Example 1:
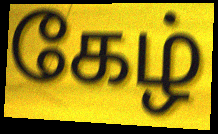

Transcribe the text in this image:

கேழ்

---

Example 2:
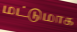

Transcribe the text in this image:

மட்டுமாக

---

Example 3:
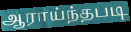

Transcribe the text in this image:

ஆராய்ந்தபடி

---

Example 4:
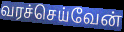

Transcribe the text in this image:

வரச்செய்வேன்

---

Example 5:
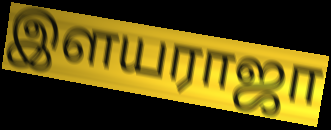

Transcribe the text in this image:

இளயராஜா